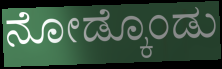
ನೋಡ್ಕೊಂಡು